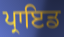
ਪ੍ਰਾਇਡ